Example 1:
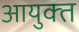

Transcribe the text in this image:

आयुक्‍त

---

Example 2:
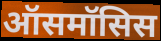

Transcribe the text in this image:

ऑसमॉसिस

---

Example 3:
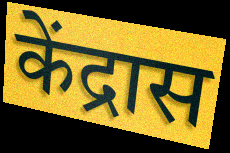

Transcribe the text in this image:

केंद्रास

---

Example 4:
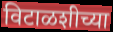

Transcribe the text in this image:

विटाळशीच्या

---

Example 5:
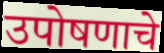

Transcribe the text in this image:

उपोषणाचे